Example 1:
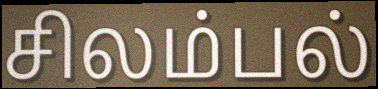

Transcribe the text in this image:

சிலம்பல்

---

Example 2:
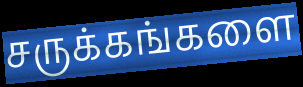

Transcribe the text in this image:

சருக்கங்களை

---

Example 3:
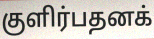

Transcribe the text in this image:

குளிர்பதனக்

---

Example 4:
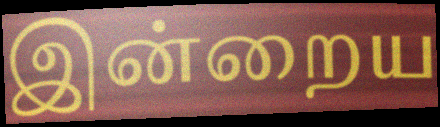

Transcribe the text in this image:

இன்றைய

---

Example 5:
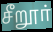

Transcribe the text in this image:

சீறூர்